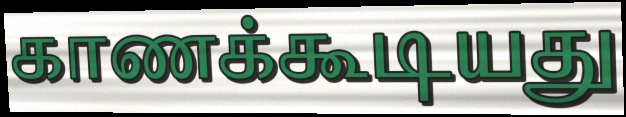
காணக்கூடியது